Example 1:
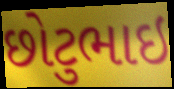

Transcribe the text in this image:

છોટુભાઇ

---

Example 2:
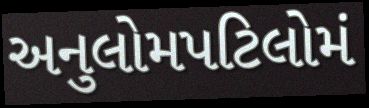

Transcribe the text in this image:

અનુલોમપટિલોમં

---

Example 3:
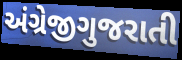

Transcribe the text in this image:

અંગ્રેજીગુજરાતી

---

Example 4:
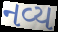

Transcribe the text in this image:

નવ્ય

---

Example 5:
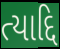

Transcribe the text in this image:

ત્યાદ્દિ